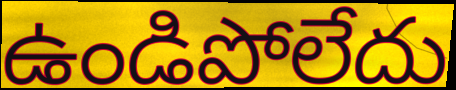
ఉండిపోలేదు